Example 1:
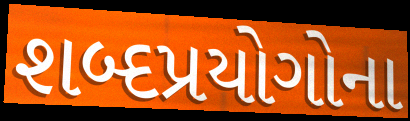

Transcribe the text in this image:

શબ્દપ્રયોગોના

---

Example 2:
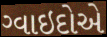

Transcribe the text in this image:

ગ્વાઇદોએ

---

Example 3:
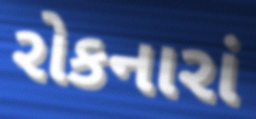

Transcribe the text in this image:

રોકનારાં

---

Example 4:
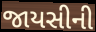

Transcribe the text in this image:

જાયસીની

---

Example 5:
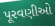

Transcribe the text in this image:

પૂરવણીઓ